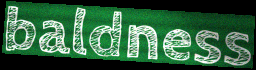
baldness